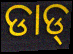
ଡାଡ୍